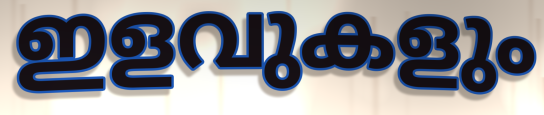
ഇളവുകളും